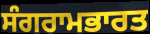
ਸੰਗਰਾਮਭਾਰਤ